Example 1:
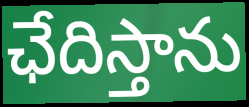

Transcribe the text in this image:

ఛేదిస్తాను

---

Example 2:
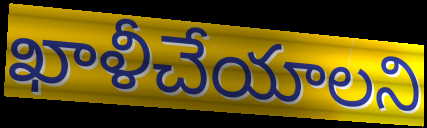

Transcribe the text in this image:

ఖాళీచేయాలని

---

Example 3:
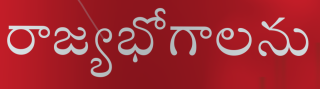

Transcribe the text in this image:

రాజ్యభోగాలను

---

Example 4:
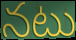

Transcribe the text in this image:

నటు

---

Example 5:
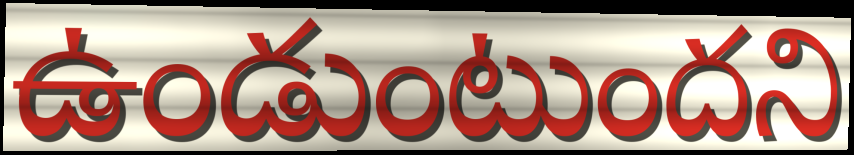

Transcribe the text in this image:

ఉండుంటుందని